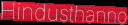
Hindusthanno